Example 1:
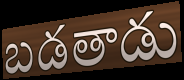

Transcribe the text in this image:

బడతాడు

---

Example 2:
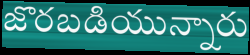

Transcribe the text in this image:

జొరబడియున్నారు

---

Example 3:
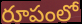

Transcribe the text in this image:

రూపంలో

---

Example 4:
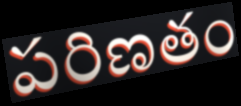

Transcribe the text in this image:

పరిణతం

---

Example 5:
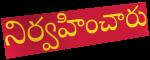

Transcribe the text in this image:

నిర్వహించారు